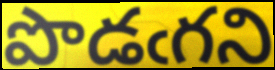
పొడఁగని